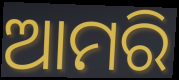
ଆମରି